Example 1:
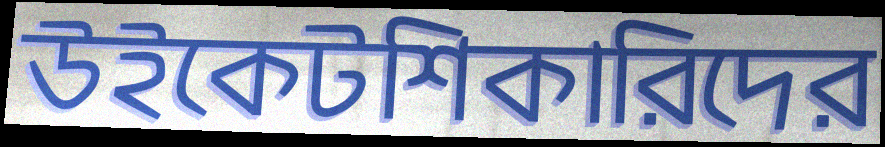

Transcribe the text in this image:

উইকেটশিকারিদের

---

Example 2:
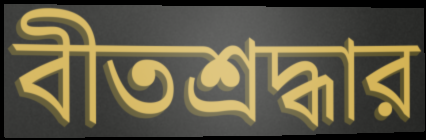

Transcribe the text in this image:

বীতশ্রদ্ধার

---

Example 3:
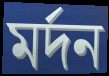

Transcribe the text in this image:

মর্দন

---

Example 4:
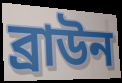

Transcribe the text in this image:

ব্রাউন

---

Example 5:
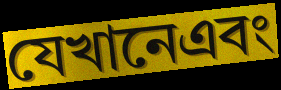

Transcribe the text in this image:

যেখানেএবং